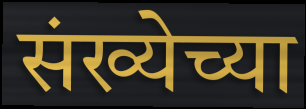
संख्येच्या